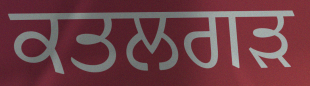
ਕਤਲਗੜ